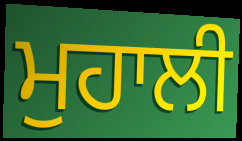
ਮੁਹਾਲੀ